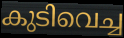
കുടിവെച്ച